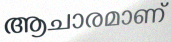
ആചാരമാണ്